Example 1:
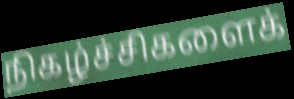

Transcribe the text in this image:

நிகழ்ச்சிகளைக்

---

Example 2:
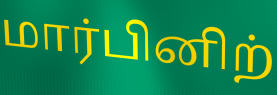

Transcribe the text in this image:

மார்பினிற்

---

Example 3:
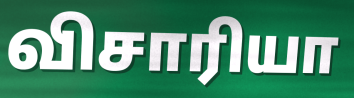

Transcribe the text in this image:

விசாரியா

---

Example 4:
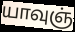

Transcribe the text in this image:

யாவுஞ்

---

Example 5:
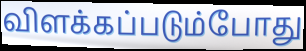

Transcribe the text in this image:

விளக்கப்படும்போது